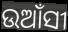
ଉଆଁସୀ